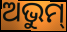
ଅଭୁମ୍